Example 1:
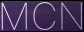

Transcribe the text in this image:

MCN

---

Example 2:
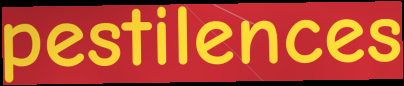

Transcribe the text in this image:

pestilences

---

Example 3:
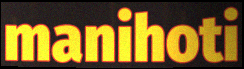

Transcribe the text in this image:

manihoti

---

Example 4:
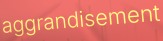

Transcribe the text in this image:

aggrandisement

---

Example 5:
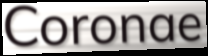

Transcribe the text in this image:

Coronae